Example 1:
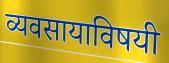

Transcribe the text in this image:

व्यवसायाविषयी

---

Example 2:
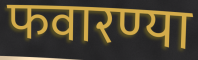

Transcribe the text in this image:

फवारण्या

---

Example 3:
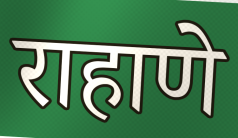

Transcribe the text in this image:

राहाणे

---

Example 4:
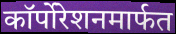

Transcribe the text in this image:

कॉर्पोरेशनमार्फत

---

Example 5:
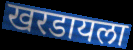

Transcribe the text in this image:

खरडायला